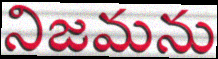
నిజమను